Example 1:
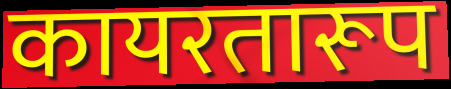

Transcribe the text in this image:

कायरतारूप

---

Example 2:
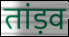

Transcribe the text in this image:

तांड़व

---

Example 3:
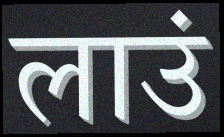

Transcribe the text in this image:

लाउं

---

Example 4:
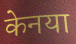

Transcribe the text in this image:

केनया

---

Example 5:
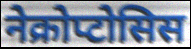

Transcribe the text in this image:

नेक्रोप्टोसिस